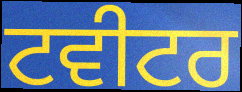
ਟਵੀਟਰ